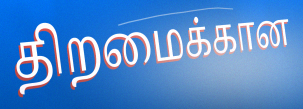
திறமைக்கான